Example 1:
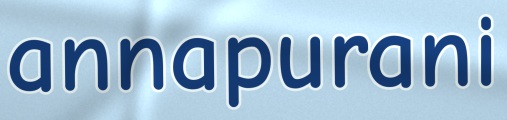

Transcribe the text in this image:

annapurani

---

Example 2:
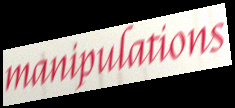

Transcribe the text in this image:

manipulations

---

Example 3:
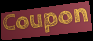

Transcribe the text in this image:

Coupon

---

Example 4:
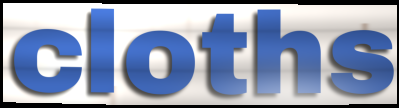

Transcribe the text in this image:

cloths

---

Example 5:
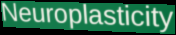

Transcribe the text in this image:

Neuroplasticity